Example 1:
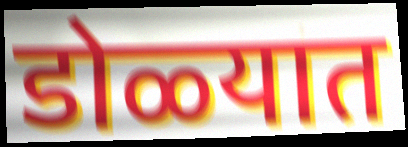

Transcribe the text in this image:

डोळ्यात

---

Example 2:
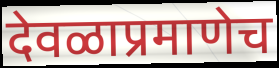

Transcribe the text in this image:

देवळाप्रमाणेच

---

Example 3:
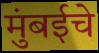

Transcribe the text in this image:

मुंबईचे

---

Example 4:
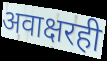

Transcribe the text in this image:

अवाक्षरही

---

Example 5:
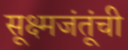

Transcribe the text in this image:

सूक्ष्मजंतूंची